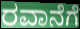
ರವಾನೆಗೆ